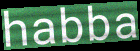
habba